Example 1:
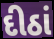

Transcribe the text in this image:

દીઠાં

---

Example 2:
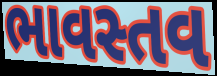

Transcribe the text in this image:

ભાવસ્તવ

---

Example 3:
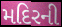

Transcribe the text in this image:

મદિરની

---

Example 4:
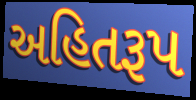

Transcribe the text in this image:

અહિતરૂપ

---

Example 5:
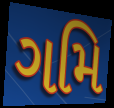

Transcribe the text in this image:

ગમિ